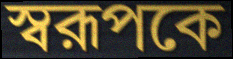
স্বরূপকে